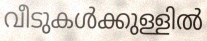
വീടുകൾക്കുള്ളിൽ